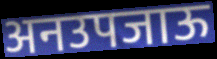
अनउपजाऊ